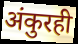
अंकुरही